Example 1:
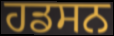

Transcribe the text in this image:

ਹਡਸਨ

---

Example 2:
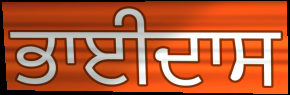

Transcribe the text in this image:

ਭਾਈਦਾਸ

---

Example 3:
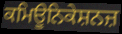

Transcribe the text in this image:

ਕਮਿਊਨਿਕੇਸ਼ਨਜ਼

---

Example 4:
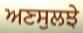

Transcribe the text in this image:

ਅਣਸੁਲਝੇ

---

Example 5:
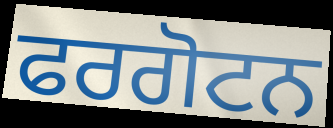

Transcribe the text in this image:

ਫਰਗੋਟਨ